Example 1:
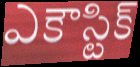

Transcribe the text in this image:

ఎకౌస్టిక్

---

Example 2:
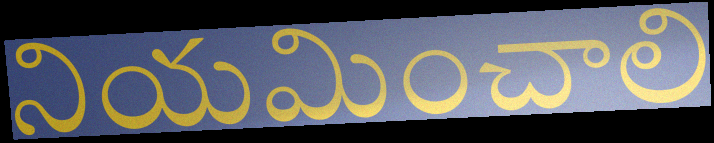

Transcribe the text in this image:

నియమించాలి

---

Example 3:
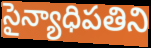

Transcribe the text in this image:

సైన్యాధిపతిని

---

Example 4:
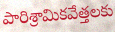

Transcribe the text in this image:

పారిశ్రామికవేత్తలకు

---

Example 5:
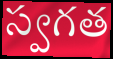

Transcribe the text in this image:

స్వగత